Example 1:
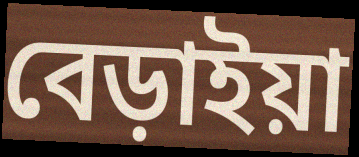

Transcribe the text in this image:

বেড়াইয়া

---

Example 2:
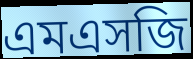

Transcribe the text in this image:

এমএসজি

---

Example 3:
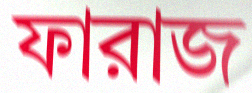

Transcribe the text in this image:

ফারাজ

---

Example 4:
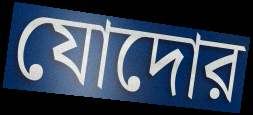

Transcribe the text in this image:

যোদোর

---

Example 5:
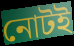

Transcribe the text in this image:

নোটই